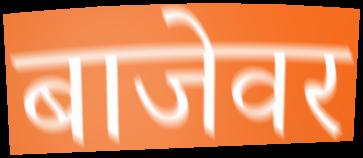
बाजेवर